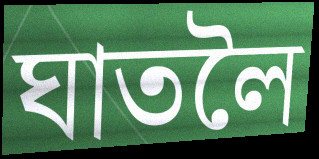
ঘাতলৈ